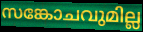
സങ്കോചവുമില്ല